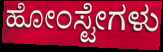
ಹೋಂಸ್ಟೇಗಳು